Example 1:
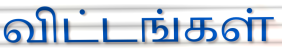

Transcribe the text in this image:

விட்டங்கள்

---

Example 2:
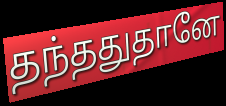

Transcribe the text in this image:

தந்ததுதானே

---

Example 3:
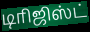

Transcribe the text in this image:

டிரிஜிஸ்ட்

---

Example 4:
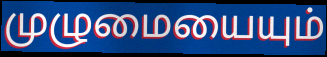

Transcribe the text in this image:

முழுமையையும்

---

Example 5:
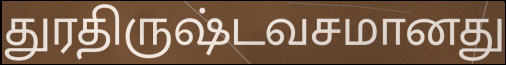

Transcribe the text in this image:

துரதிருஷ்டவசமானது